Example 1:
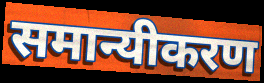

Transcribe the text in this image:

समान्यीकरण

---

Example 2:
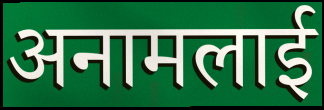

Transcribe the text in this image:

अनामलाई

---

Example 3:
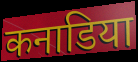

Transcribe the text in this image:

कनाडिया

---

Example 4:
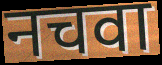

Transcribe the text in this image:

नचवा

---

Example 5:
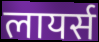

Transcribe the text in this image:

लायर्स